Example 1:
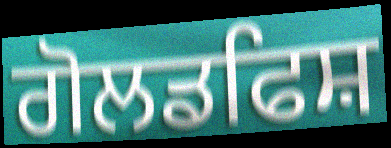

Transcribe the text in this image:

ਗੋਲਡਫਿਸ਼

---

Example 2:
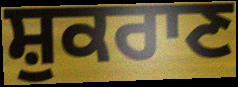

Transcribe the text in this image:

ਸ਼ੁਕਰਾਣ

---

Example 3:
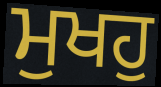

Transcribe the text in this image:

ਮੁਖਹੁ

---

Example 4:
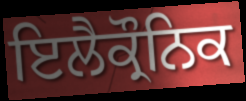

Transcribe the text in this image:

ਇਲੈਕ੍ਰੌਨਿਕ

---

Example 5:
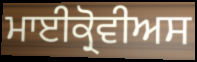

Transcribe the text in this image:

ਮਾਈਕ੍ਰੋਵੀਅਸ